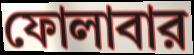
ফোলাবার